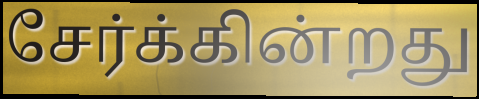
சேர்க்கின்றது